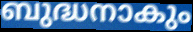
ബുദ്ധനാകും